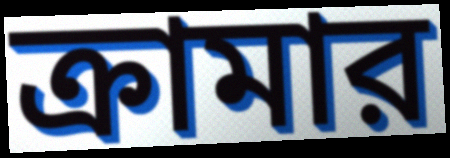
ক্রামার